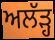
ਅਲੱੜ੍ਹ